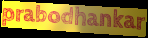
prabodhankar